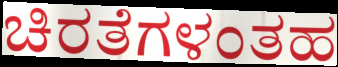
ಚಿರತೆಗಳಂತಹ